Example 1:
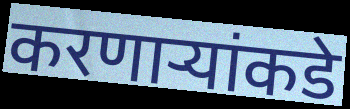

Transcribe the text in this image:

करणाऱ्यांकडे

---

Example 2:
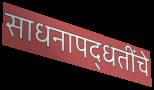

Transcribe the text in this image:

साधनापद्धतींचे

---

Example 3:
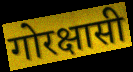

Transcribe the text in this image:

गोरक्षासी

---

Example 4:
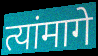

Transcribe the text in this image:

त्यांमागे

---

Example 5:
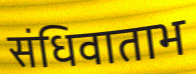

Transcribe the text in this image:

संधिवाताभ